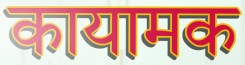
कायामक